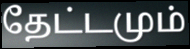
தேட்டமும்